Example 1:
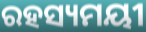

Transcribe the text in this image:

ରହସ୍ୟମୟୀ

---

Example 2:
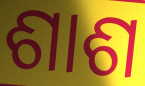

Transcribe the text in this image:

ଶାଶ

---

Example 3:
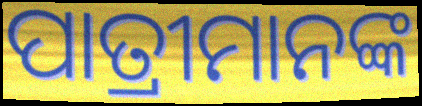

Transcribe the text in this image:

ପାତ୍ରୀମାନଙ୍କ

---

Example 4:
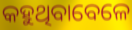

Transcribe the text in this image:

କହୁଥିବାବେଳେ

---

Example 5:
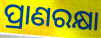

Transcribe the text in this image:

ପ୍ରାଣରକ୍ଷା